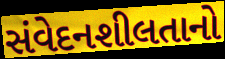
સંવેદનશીલતાનો